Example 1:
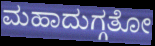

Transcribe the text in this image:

ಮಹಾದುಗ್ಗತೋ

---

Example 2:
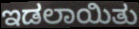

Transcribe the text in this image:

ಇಡಲಾಯಿತು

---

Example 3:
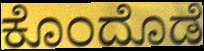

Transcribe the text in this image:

ಕೊಂದೊಡೆ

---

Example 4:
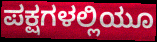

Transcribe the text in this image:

ಪಕ್ಷಗಳಲ್ಲಿಯೂ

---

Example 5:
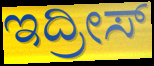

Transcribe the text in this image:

ಇದ್ರೀಸ್